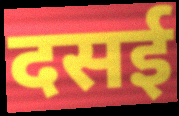
दसई